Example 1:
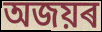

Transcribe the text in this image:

অজয়ৰ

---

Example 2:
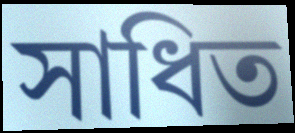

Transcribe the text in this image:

সাধিত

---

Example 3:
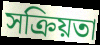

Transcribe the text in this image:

সক্ৰিয়তা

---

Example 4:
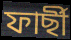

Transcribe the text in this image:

ফাৰ্ছী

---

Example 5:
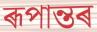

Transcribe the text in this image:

ৰূপান্তৰ